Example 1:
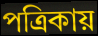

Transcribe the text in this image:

পত্রিকায়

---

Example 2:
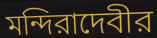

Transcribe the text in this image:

মন্দিরাদেবীর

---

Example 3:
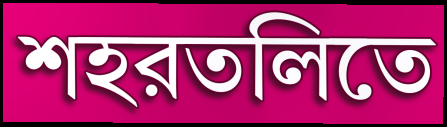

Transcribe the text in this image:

শহরতলিতে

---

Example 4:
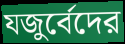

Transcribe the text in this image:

যজুর্বেদের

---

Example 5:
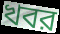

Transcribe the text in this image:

খবর